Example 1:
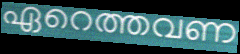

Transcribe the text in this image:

ഏറെത്തവണ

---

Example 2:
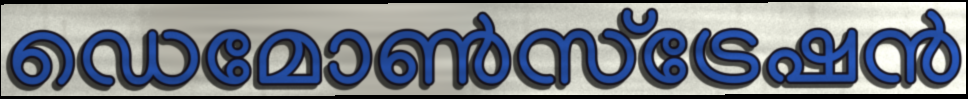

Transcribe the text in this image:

ഡെമോൺസ്ട്രേഷൻ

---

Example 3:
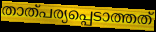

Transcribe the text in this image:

താത്പര്യപ്പെടാത്തത്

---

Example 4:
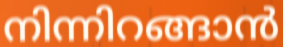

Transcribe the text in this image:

നിന്നിറങ്ങാൻ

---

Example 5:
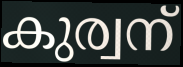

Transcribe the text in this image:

കുര്വന്